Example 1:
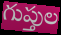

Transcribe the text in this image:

గుప్తుల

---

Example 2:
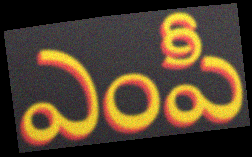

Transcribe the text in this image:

ఎంపీ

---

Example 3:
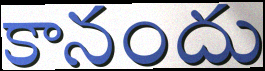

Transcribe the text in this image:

కానందు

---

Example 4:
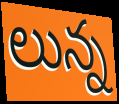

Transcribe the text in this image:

లున్న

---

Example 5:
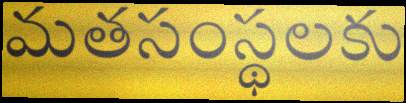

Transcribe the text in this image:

మతసంస్థలకు